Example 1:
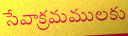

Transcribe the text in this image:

సేవాక్రమములకు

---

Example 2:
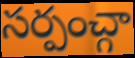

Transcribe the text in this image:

సర్పంచ్గా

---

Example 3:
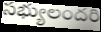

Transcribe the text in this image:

సభ్యులందరి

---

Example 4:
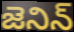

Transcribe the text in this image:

జెనిన్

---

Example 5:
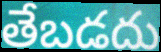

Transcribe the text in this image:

తేబడదు